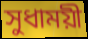
সুধাময়ী